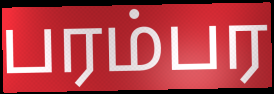
பரம்பர